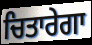
ਚਿਤਾਰੇਗਾ